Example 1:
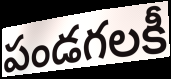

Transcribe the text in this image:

పండగలకీ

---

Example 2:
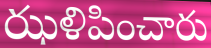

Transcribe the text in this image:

ఝళిపించారు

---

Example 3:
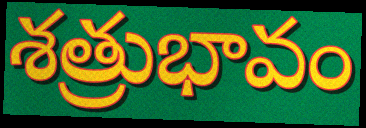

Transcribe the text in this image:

శత్రుభావం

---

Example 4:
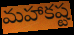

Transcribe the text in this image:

మహాకష్ట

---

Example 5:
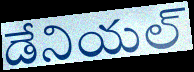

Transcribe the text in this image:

డేనియల్